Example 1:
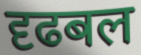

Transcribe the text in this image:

दृढबल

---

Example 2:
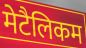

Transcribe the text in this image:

मेटैलिकम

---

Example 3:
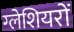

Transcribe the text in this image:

ग्‍लेशियरों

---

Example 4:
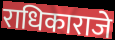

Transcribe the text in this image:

राधिकाराजे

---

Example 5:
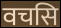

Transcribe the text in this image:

वचसि